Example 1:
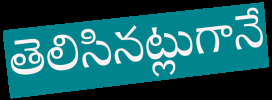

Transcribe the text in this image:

తెలిసినట్లుగానే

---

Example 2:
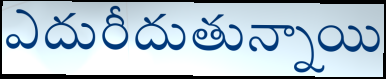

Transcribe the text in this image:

ఎదురీదుతున్నాయి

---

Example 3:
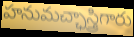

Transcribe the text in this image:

హనుమచ్ఛాస్త్రిగారు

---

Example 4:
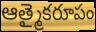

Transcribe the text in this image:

ఆత్మైకరూపం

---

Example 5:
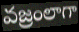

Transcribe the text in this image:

వజ్రంలాగా